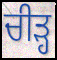
ਚੀੜ੍ਹ